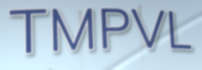
TMPVL